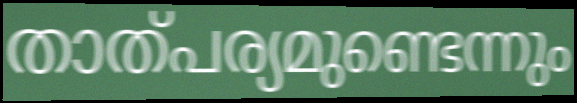
താത്പര്യമുണ്ടെന്നും